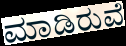
ಮಾಡಿರುವೆ